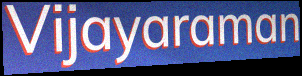
Vijayaraman